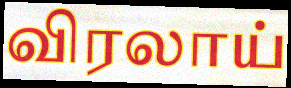
விரலாய்